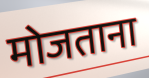
मोजताना